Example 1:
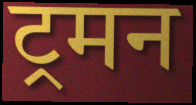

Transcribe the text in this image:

ट्रमन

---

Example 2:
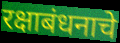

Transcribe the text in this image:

रक्षाबंधनाचे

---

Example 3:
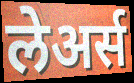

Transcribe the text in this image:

लेअर्स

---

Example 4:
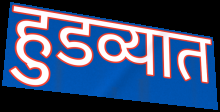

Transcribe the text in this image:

हुडव्यात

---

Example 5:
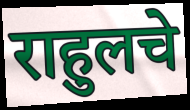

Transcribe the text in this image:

राहुलचे